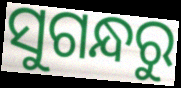
ସୁଗନ୍ଧରୁ